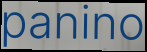
panino